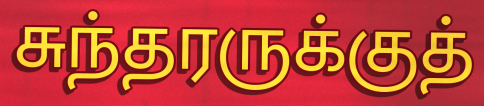
சுந்தரருக்குத்